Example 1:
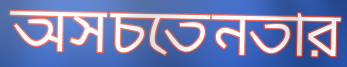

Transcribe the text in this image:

অসচতেনতার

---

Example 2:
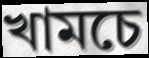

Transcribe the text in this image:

খামচে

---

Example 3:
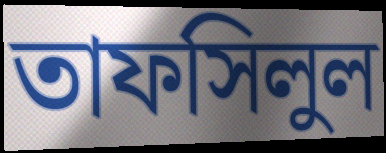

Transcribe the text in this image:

তাফসিলুল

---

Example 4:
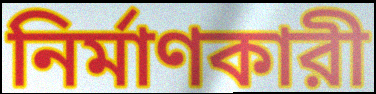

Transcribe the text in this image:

নির্মাণকারী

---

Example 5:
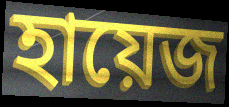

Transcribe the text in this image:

হায়েজ